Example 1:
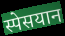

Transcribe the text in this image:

स्पेसयान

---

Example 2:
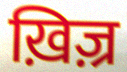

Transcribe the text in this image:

ख़िज़्र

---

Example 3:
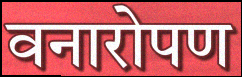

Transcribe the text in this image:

वनारोपण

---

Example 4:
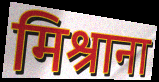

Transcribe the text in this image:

मिश्राना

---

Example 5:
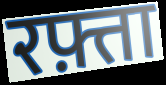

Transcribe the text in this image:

रफ़्ता